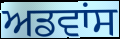
ਅਡਵਾਂਸ